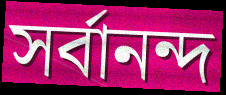
সর্বানন্দ